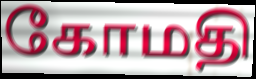
கோமதி